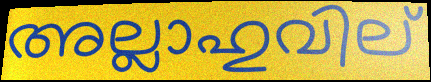
അല്ലാഹുവില്